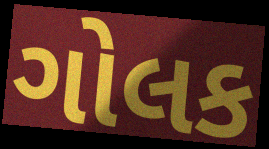
ગોલક